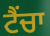
ਟੈਂਚਾ